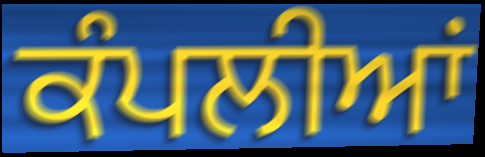
ਕੰਪਲੀਆਂ